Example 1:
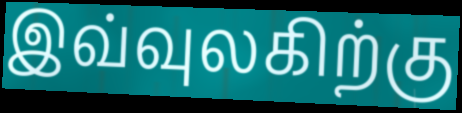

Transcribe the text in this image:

இவ்வுலகிற்கு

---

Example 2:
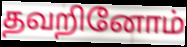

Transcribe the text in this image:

தவறினோம்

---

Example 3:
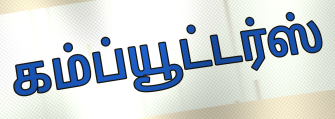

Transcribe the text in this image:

கம்ப்யூட்டர்ஸ்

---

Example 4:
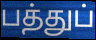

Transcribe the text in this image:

பத்துப்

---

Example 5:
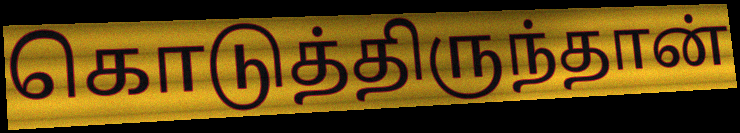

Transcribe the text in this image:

கொடுத்திருந்தான்